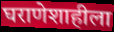
घराणेशाहीला